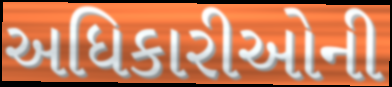
અધિકારીઓની